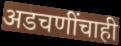
अडचणींचाही